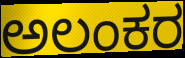
ಅಲಂಕರ